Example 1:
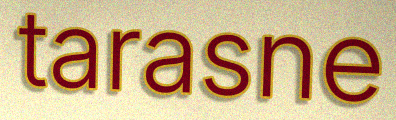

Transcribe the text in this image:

tarasne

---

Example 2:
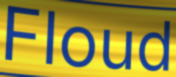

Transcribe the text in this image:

Floud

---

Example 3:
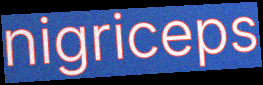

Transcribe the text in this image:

nigriceps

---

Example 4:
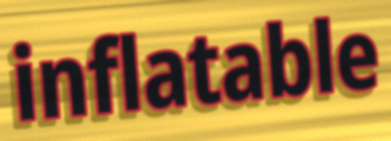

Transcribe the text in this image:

inflatable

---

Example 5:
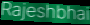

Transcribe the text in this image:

Rajeshbhai